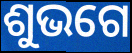
ଶୁଭଗେ